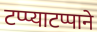
टप्प्याटप्पाने